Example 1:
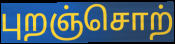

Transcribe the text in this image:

புறஞ்சொற்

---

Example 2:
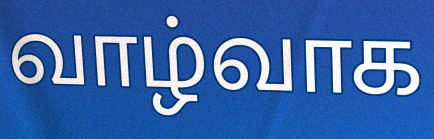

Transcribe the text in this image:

வாழ்வாக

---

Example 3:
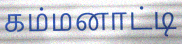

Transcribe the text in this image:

கம்மனாட்டி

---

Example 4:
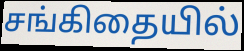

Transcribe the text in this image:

சங்கிதையில்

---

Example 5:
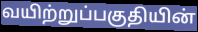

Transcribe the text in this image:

வயிற்றுப்பகுதியின்